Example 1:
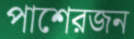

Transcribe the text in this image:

পাশেরজন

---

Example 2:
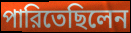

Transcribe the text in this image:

পারিতেছিলেন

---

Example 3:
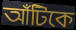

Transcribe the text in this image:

আঁটিকে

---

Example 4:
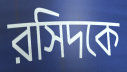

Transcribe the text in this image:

রসিদকে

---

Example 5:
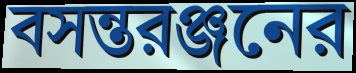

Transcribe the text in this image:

বসন্তরঞ্জনের